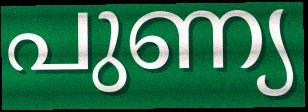
പുണ്യ